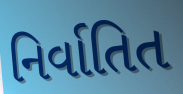
નિર્વાતિત